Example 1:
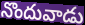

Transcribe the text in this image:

నొందువాడు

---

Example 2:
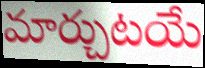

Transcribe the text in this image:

మార్చుటయే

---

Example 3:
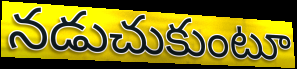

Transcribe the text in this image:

నడుచుకుంటూ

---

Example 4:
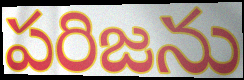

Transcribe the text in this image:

పరిజను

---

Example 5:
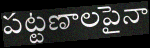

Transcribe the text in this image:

పట్టణాలపైనా